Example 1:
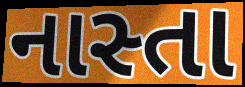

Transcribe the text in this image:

નાસ્તા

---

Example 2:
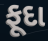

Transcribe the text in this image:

ફૂદા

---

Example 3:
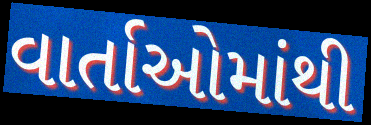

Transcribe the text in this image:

વાર્તાઓમાંથી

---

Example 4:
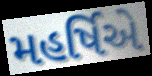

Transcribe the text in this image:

મહર્ષિએ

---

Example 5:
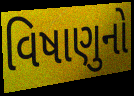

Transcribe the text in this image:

વિષાણુનો